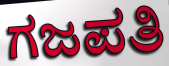
ಗಜಪತಿ